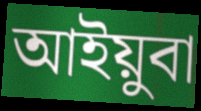
আইয়ুবা